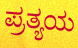
ಪ್ರತ್ಯಯ